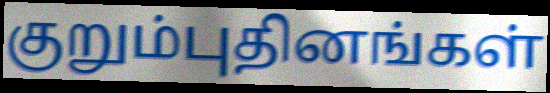
குறும்புதினங்கள்